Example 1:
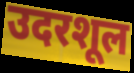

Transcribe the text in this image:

उदरशूल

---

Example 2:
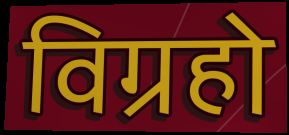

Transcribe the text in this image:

विग्रहो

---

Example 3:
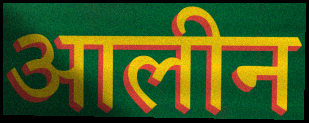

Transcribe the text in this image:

आलीन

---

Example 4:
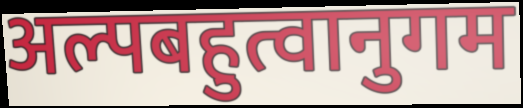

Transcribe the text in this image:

अल्पबहुत्वानुगम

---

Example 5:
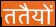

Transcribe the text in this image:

ततैयों